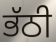
ਭੱਠੀ